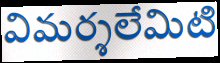
విమర్శలేమిటి